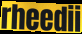
rheedii